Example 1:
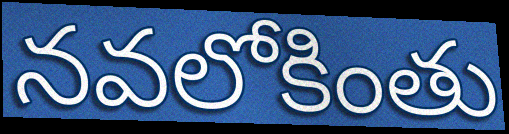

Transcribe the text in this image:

నవలోకింతు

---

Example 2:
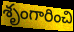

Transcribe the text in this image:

శృంగారించి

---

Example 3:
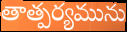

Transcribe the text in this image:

తాత్పర్యమును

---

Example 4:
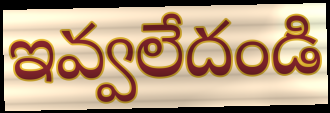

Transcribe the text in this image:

ఇవ్వలేదండి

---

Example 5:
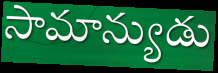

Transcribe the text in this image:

సామాన్యుడు